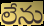
లేను